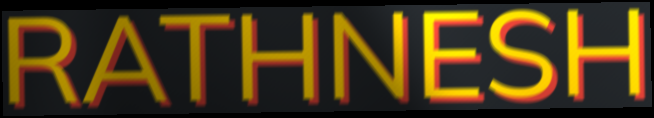
RATHNESH